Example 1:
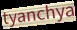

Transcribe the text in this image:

tyanchya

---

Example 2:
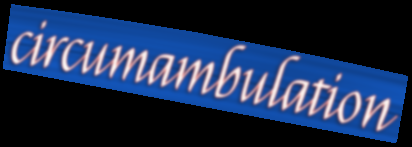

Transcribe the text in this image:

circumambulation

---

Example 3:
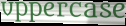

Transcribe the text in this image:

uppercase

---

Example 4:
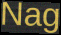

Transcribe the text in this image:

Nag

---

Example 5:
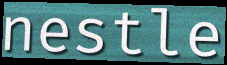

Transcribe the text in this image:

nestle